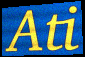
Ati